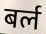
बर्ल